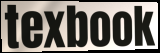
texbook